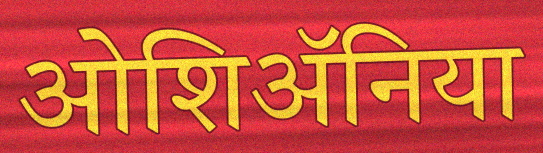
ओशिॲनिया